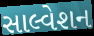
સાલ્વેશન